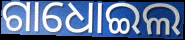
ଗାଧୋଇଲ